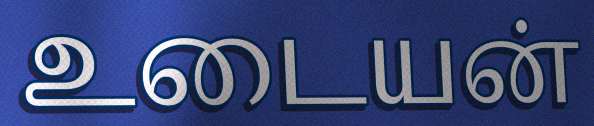
உடையன்